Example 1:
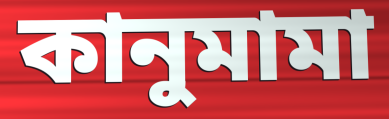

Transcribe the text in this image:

কানুমামা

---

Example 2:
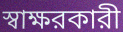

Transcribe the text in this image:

স্বাক্ষরকারী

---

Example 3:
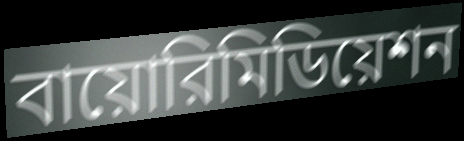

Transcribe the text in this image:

বায়োরিমিডিয়েশন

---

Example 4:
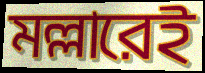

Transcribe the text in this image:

মল্লারেই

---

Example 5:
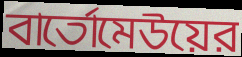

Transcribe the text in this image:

বার্তোমেউয়ের